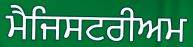
ਮੈਜਿਸਟਰੀਅਮ